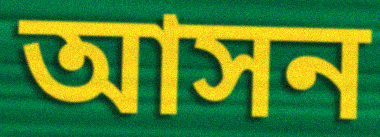
আসন